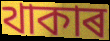
থাকাৰ